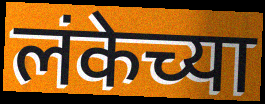
लंकेच्या